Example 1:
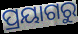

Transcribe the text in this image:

ପ୍ରୟାଗରୁ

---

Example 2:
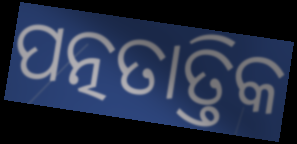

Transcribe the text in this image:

ପତ୍ନତାତ୍ତିକ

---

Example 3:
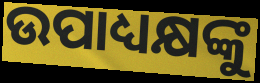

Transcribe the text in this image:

ଉପାଧ୍ୟକ୍ଷଙ୍କୁ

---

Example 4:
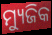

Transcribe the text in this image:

ମ୍ୟୁଜିକ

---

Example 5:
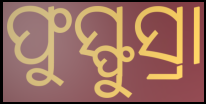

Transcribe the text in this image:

ଫୁସ୍ଫୁସ୍ରା